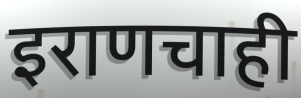
इराणचाही